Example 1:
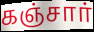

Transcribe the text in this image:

கஞ்சார்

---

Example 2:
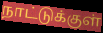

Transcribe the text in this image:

நாட்டுக்குள்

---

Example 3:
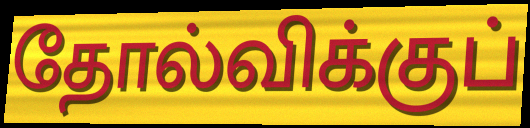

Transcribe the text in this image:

தோல்விக்குப்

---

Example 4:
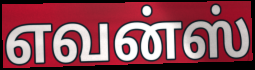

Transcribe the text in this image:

எவன்ஸ்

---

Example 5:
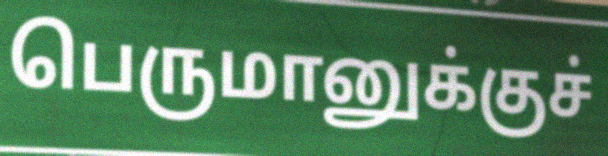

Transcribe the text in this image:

பெருமானுக்குச்